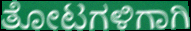
ತೋಟಗಳಿಗಾಗಿ